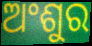
ଅଂଶୁର